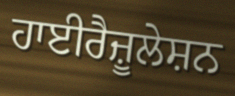
ਹਾਈਰੈਜ਼ੂਲੇਸ਼ਨ